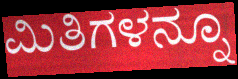
ಮಿತಿಗಳನ್ನೂ